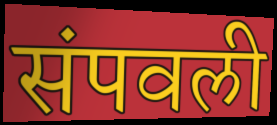
संपवली